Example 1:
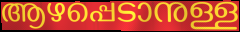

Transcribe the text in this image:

ആഴപ്പെടാനുള്ള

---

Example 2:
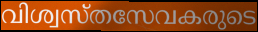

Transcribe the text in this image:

വിശ്വസ്തസേവകരുടെ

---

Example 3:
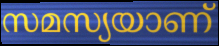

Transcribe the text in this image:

സമസ്യയാണ്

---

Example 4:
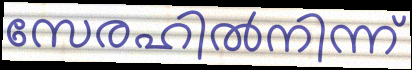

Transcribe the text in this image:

സേരഹിൽനിന്ന്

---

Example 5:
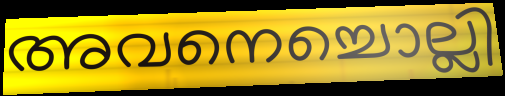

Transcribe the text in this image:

അവനെച്ചൊല്ലി